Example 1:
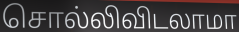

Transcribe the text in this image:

சொல்லிவிடலாமா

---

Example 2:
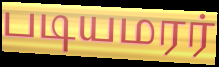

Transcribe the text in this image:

படியமரர்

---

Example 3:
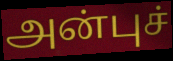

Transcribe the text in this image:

அன்புச்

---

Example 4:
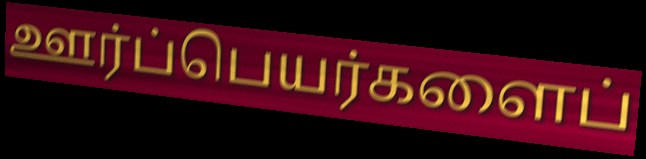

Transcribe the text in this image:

ஊர்ப்பெயர்களைப்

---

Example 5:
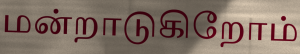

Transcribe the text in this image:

மன்றாடுகிறோம்